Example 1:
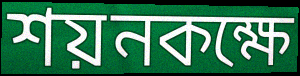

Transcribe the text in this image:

শয়নকক্ষে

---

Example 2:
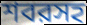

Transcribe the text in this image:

শবরসহ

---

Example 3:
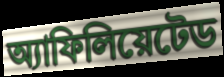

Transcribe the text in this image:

অ্যাফিলিয়েটেড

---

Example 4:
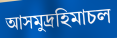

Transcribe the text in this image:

আসমুদ্রহিমাচল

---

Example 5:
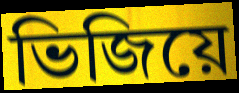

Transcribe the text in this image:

ভিজিয়ে